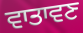
ਵਾਤਾਵਣ